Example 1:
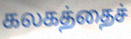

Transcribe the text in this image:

கலகத்தைச்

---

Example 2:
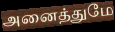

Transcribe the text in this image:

அனைத்துமே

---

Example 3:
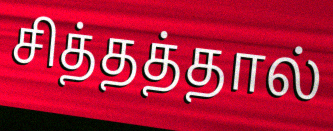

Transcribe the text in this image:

சித்தத்தால்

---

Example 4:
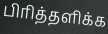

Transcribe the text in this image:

பிரித்தளிக்க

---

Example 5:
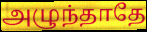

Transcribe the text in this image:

அழுந்தாதே